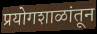
प्रयोगशाळांतून